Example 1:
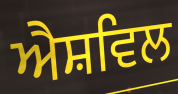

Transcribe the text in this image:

ਐਸ਼ਵਿਲ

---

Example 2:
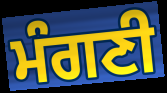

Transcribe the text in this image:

ਮੰਗਣੀ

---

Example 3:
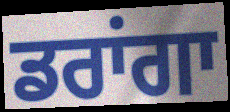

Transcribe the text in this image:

ਡਰਾਂਗਾ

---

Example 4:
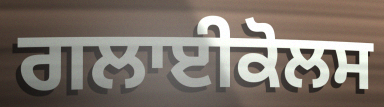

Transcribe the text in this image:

ਗਲਾਈਕੋਲਸ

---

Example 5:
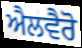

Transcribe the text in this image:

ਐਲਵੈਰੋ